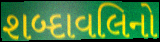
શબ્દાવલિનો